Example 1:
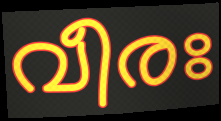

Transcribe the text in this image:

വീരഃ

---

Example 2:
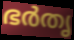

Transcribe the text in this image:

ഭർതൃ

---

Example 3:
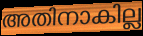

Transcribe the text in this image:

അതിനാകില്ല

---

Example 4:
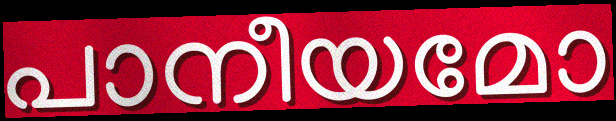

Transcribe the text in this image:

പാനീയമോ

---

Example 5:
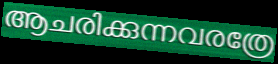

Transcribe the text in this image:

ആചരിക്കുന്നവരത്രേ